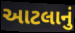
આટલાનું